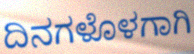
ದಿನಗಳೊಳಗಾಗಿ